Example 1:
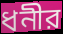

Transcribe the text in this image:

ধনীর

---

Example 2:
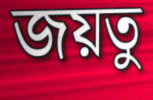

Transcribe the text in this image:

জয়তু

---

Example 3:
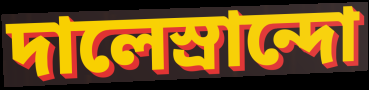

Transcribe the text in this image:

দালেস্রান্দো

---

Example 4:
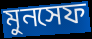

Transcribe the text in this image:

মুনসেফ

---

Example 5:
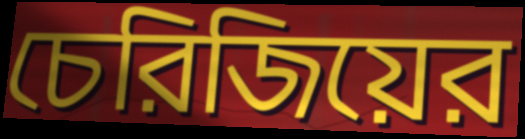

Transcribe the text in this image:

চেরিজিয়ের